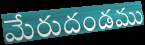
మేరుదండము